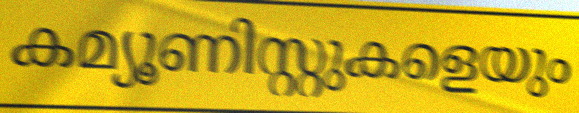
കമ്യൂണിസ്റ്റുകളെയും